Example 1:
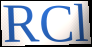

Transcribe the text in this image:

RCl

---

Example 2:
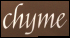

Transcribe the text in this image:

chyme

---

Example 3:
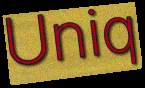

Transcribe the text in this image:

Uniq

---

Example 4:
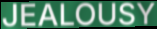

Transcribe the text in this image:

JEALOUSY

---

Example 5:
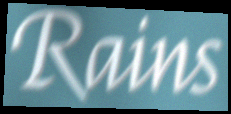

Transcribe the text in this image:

Rains